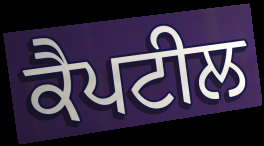
ਕੈਪਟੀਲ